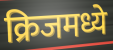
क्रिजमध्ये